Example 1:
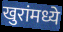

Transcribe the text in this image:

खुरांमध्ये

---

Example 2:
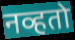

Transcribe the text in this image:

नव्हतो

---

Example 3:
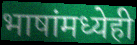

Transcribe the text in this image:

भाषांमध्येही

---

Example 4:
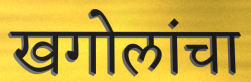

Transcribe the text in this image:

खगोलांचा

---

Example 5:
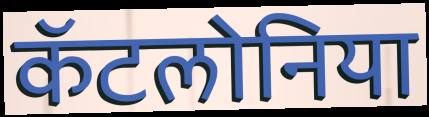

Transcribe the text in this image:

कॅटलोनिया